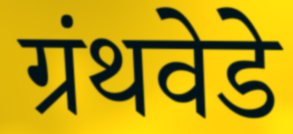
ग्रंथवेडे